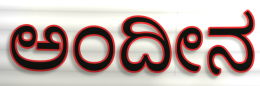
ಅಂದೀನ